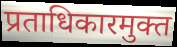
प्रताधिकारमुक्त